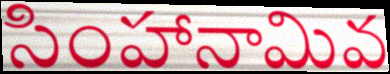
సింహానామివ